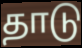
தாடு